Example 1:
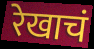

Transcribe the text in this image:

रेखाचं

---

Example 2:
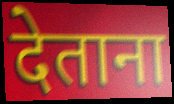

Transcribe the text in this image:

देताना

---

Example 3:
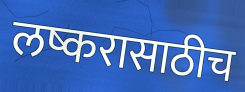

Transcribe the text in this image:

लष्करासाठीच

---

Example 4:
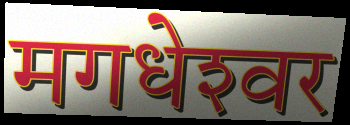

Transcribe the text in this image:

मगधेश्वर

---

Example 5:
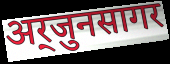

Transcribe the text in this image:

अर्जुनसागर